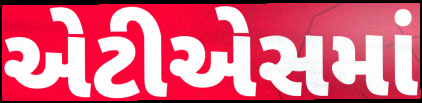
એટીએસમાં